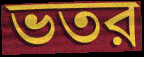
ভতর